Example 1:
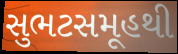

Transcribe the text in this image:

સુભટસમૂહથી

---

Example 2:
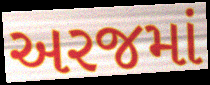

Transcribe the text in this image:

અરજમાં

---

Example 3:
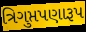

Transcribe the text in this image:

ત્રિગુપ્તપણારૂપ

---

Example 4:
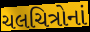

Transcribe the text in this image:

ચલચિત્રોનાં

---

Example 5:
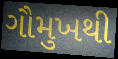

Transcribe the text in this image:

ગૌમુખથી